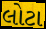
લોટા